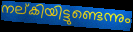
നല്കിയിട്ടുണ്ടെന്നും